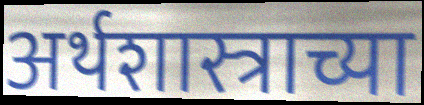
अर्थशास्त्राच्या